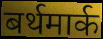
बर्थमार्क